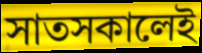
সাতসকালেই